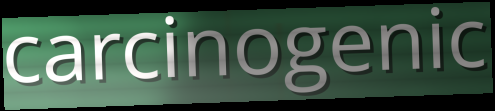
carcinogenic